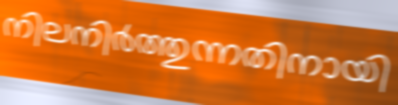
നിലനിർത്തുന്നതിനായി